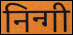
निन्गी